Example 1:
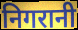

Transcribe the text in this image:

निगरानी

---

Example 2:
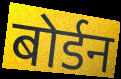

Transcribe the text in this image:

बोर्डन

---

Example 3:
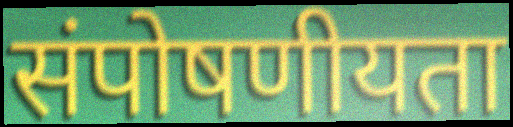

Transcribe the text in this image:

संपोषणीयता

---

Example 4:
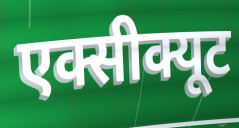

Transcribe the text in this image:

एक्सीक्यूट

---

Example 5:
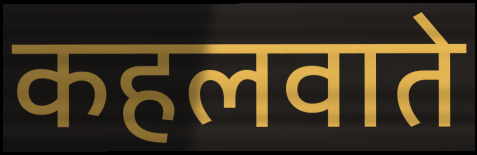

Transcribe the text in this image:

कहलवाते